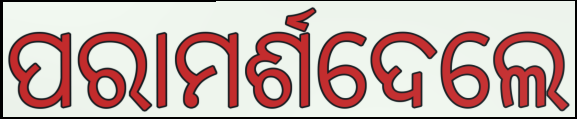
ପରାମର୍ଶଦେଲେ